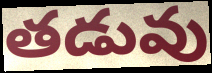
తడువు